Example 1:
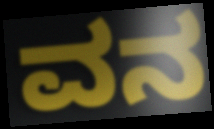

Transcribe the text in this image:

ವನ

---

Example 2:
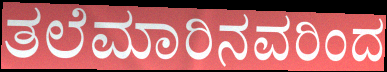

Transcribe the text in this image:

ತಲೆಮಾರಿನವರಿಂದ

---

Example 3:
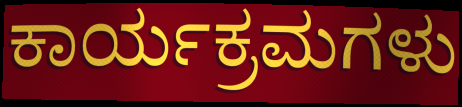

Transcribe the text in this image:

ಕಾರ್ಯಕ್ರಮಗಳು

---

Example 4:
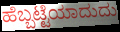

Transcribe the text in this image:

ಹೆಬ್ಬಟ್ಟೆಯಾದುದು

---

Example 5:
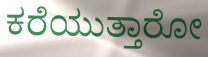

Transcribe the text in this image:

ಕರೆಯುತ್ತಾರೋ